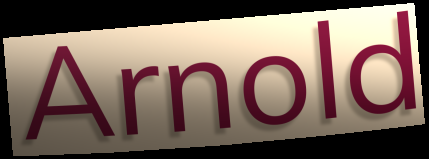
Arnold